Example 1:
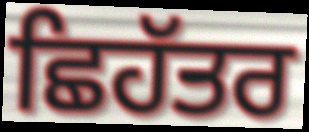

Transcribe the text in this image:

ਛਿਹੱਤਰ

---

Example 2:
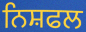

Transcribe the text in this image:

ਨਿਸ਼ਫਲ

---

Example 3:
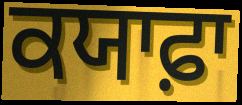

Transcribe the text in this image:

ਕਯਾਫ਼ਾ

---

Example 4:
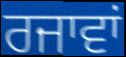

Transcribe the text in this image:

ਰਜਾਵਾਂ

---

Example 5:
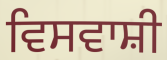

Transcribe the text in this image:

ਵਿਸਵਾਸ਼ੀ